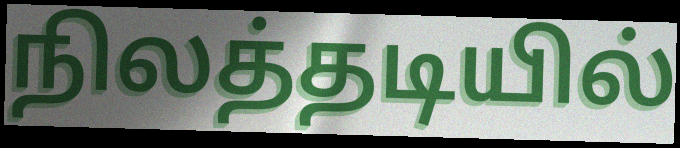
நிலத்தடியில்